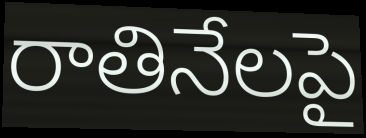
రాతినేలపై